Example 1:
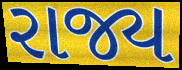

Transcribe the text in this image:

રાજ્ય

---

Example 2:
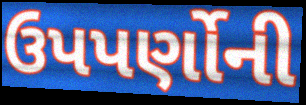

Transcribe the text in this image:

ઉપપર્ણોની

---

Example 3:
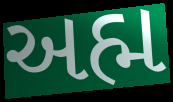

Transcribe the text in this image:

અહ્મ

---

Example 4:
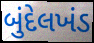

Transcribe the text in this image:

બુંદેલખંડ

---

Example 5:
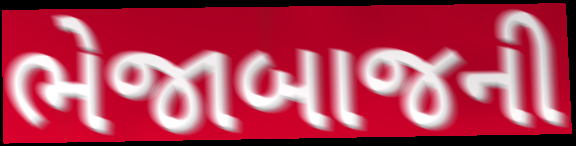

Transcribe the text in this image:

ભેજાબાજની